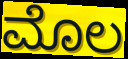
ಮೊಲ